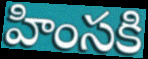
హింసకి